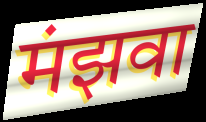
मंझवा